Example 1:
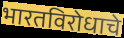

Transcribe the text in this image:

भारतविरोधाचे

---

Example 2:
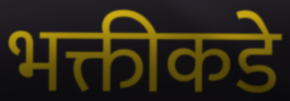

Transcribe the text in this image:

भक्तीकडे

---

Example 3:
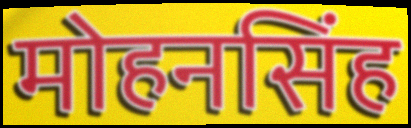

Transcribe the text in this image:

मोहनसिंह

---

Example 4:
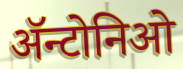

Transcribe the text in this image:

ॲन्टोनिओ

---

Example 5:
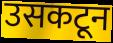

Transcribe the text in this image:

उसकटून